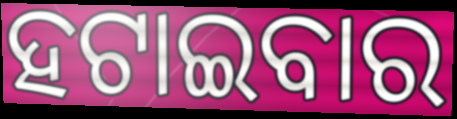
ହଟାଇବାର